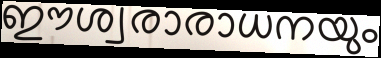
ഈശ്വരാരാധനയും